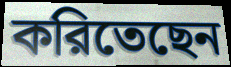
করিতেছেন